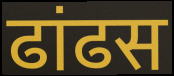
ढांढस